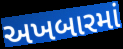
અખબારમાં